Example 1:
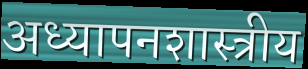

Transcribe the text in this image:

अध्यापनशास्त्रीय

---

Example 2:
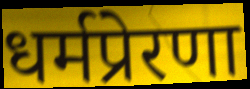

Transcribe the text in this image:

धर्मप्रेरणा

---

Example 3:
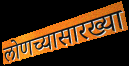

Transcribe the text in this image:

लोणच्यासारख्या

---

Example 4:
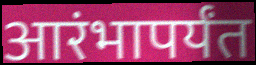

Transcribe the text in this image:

आरंभापर्यंत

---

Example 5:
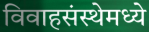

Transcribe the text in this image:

विवाहसंस्थेमध्ये